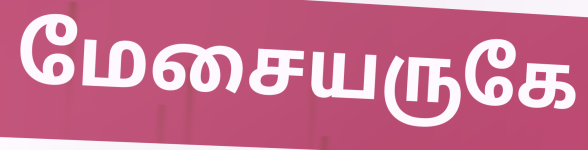
மேசையருகே